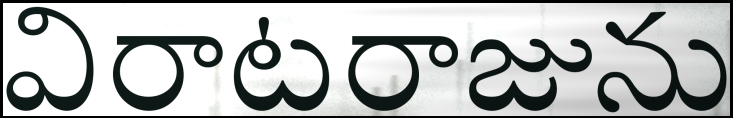
విరాటరాజును